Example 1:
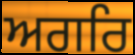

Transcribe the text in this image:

ਅਗਰਿ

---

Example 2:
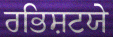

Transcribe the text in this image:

ਰਭਿਸ਼ਟਯੇ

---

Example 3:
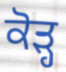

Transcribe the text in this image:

ਕੋੜ੍ਹ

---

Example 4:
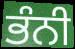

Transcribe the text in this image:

ਭੰਨੀ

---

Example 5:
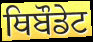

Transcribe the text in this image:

ਥਿਬੌਡੇਟ